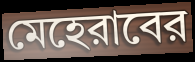
মেহেরাবের